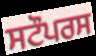
ਸਟੌਪਰਸ